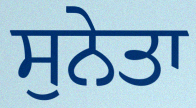
ਸੁਨੇਤਾ